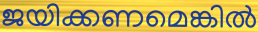
ജയിക്കണമെങ്കിൽ